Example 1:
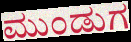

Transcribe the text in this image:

ಮುಂಡುಗ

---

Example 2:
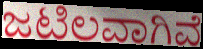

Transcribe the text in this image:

ಜಟಿಲವಾಗಿವೆ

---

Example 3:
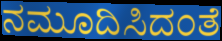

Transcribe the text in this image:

ನಮೂದಿಸಿದಂತೆ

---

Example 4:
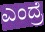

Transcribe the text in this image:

ಎಂದ್ರೆ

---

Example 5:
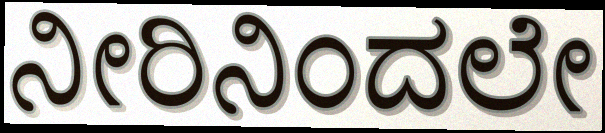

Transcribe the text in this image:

ನೀರಿನಿಂದಲೇ